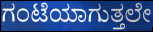
ಗಂಟೆಯಾಗುತ್ತಲೇ